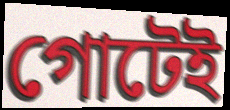
গোটেই